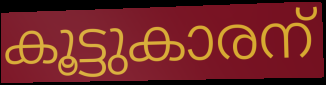
കൂട്ടുകാരന്